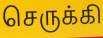
செருக்கி